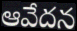
ఆవేదన